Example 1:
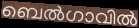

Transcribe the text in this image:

ബെൽഗാവിൽ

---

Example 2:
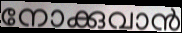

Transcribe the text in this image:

നോക്കുവാൻ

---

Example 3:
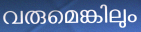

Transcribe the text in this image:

വരുമെങ്കിലും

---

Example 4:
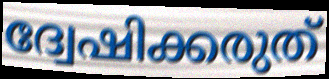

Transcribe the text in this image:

ദ്വേഷിക്കരുത്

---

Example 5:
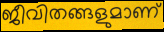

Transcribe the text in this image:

ജീവിതങ്ങളുമാണ്